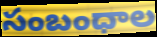
సంబంధాల